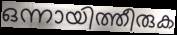
ഒന്നായിത്തീരുക